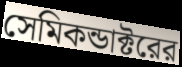
সেমিকন্ডাক্টরের